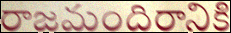
రాజమందిరానికి